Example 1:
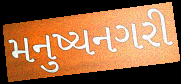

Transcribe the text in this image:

મનુષ્યનગરી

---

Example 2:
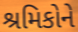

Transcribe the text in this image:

શ્રમિકોને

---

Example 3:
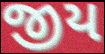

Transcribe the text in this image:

જીય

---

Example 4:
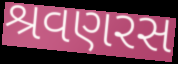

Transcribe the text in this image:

શ્રવણરસ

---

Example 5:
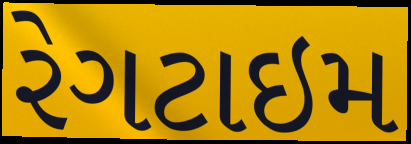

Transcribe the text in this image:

રેગટાઇમ